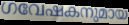
ഗവേഷകനുമായ